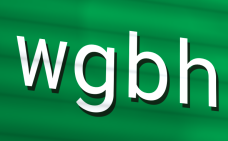
wgbh